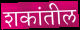
शकांतील